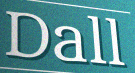
Dall